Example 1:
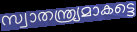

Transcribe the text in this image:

സ്വാതന്ത്ര്യമാകട്ടെ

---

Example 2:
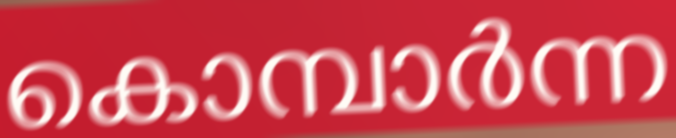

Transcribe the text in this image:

കൊമ്പാർന്ന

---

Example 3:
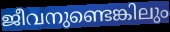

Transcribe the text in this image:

ജീവനുണ്ടെങ്കിലും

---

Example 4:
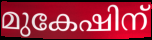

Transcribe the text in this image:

മുകേഷിന്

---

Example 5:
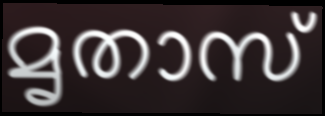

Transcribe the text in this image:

മൃതാസ്